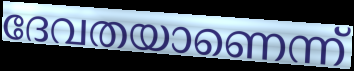
ദേവതയാണെന്ന്